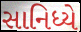
સાનિધ્યે